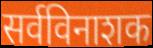
सर्वविनाशक